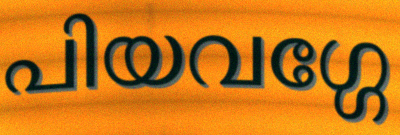
പിയവഗ്ഗേ